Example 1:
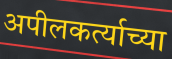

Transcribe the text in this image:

अपीलकर्त्याच्या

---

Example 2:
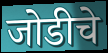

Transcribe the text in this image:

जोडीचे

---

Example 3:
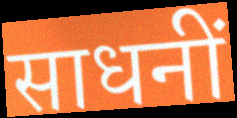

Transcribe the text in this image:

साधनीं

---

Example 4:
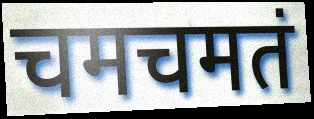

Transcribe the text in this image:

चमचमतं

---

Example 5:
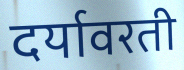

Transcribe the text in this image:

दर्यावरती